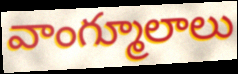
వాంగ్మూలాలు